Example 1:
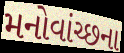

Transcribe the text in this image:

મનોવાંચ્છના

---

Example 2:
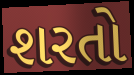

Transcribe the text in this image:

શરતો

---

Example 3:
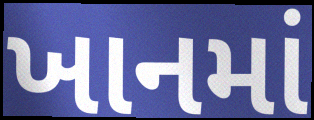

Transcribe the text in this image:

ખાનમાં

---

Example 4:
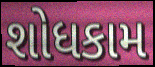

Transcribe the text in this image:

શોધકામ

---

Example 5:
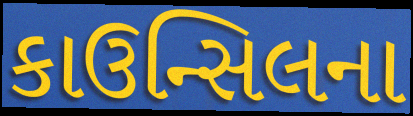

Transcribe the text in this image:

કાઉન્સિલના